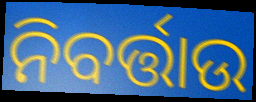
ନିବର୍ତ୍ତାଉ